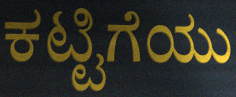
ಕಟ್ಟಿಗೆಯು